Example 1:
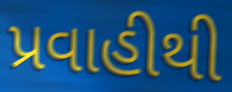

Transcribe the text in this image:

પ્રવાહીથી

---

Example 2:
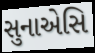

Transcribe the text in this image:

સુનાએસિ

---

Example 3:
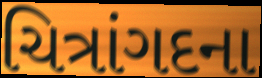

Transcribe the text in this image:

ચિત્રાંગદના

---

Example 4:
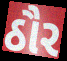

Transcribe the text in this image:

ઠૌર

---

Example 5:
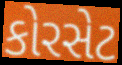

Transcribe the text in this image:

કોરસેટ